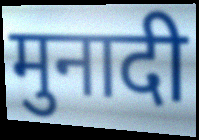
मुनादी